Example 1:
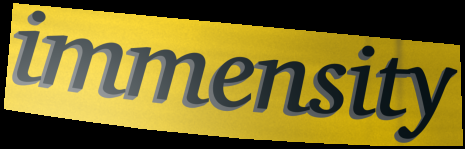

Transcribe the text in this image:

immensity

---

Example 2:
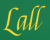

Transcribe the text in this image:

Lall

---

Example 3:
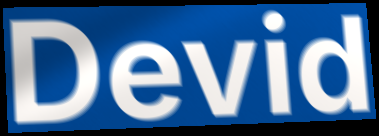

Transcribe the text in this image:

Devid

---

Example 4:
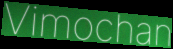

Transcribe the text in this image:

Vimochan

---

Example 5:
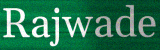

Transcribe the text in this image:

Rajwade